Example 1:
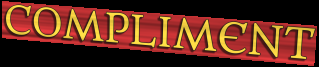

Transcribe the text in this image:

COMPLIMENT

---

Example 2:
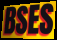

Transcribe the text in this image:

BSES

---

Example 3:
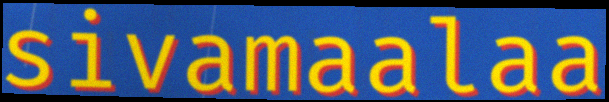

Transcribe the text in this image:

sivamaalaa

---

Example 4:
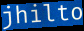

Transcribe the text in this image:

jhilto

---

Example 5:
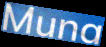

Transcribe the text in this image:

Muna